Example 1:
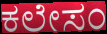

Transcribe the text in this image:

ಕಲೇಸಂ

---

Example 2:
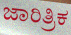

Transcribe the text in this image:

ಜಾರಿತ್ರಿಕ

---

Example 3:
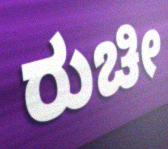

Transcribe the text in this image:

ರುಚೀ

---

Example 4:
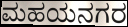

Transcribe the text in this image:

ಮಹಯನಗರ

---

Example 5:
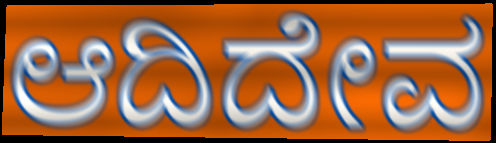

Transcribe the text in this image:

ಆದಿದೇವ